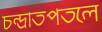
চন্দ্রাতপতলে